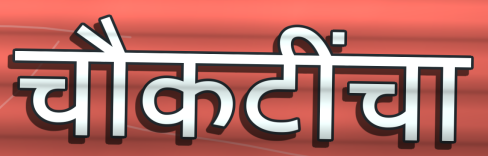
चौकटींचा